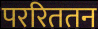
पररिततन